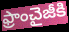
ఫ్రాంచైజీకి